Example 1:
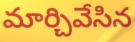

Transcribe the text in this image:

మార్చివేసిన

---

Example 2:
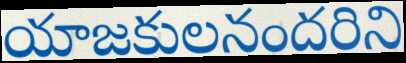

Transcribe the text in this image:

యాజకులనందరిని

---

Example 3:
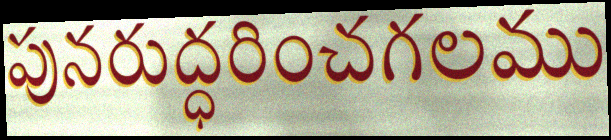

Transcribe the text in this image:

పునరుద్ధరించగలము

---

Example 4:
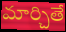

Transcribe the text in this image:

మార్చితే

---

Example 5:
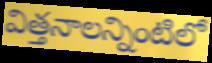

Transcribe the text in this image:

విత్తనాలన్నింటిలో